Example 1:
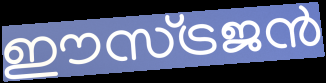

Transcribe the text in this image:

ഈസ്ട്രജൻ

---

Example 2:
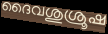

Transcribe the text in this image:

ദൈവശുശ്രൂഷ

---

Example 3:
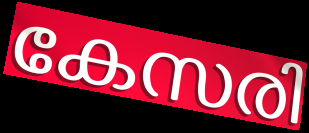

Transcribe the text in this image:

കേസരി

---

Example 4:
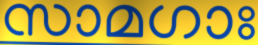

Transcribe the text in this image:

സാമഗാഃ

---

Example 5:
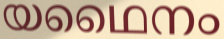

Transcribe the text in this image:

യഥൈനം